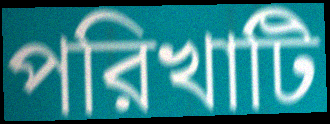
পরিখাটি